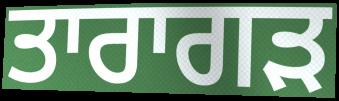
ਤਾਰਾਗੜ